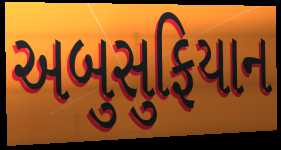
અબુસુફિયાન